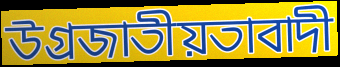
উগ্রজাতীয়তাবাদী